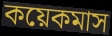
কয়েকমাস